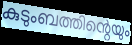
കുടുംബത്തിന്റെയും